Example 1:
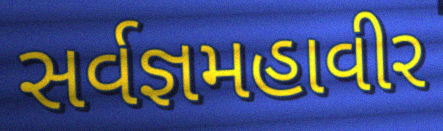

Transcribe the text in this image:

સર્વજ્ઞમહાવીર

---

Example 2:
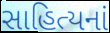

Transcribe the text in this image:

સાહિત્યનાં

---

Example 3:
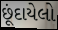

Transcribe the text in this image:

છૂંદાયેલો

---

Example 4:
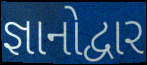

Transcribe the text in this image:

જ્ઞાનોદ્વાર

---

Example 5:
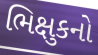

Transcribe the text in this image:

ભિક્ષુકનો